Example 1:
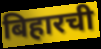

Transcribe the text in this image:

बिहारची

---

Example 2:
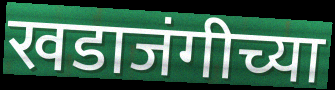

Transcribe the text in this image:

खडाजंगीच्या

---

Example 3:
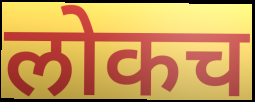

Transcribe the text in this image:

लोकच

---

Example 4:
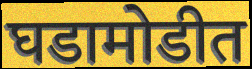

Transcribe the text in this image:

घडामोडीत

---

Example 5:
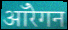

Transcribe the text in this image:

ऑरेगन